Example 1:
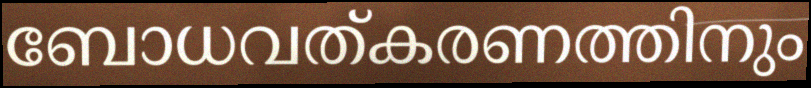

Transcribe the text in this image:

ബോധവത്കരണത്തിനും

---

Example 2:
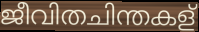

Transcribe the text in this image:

ജീവിതചിന്തകള്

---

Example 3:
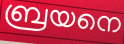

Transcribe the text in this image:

ബ്രയനെ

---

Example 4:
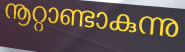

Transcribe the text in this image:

നൂറ്റാണ്ടാകുന്നു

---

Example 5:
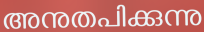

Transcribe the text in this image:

അനുതപിക്കുന്നു